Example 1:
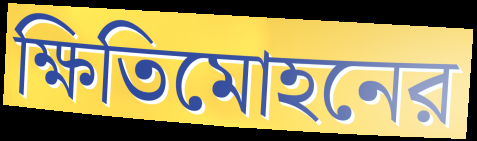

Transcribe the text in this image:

ক্ষিতিমোহনের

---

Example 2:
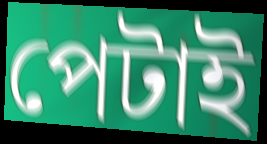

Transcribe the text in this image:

পেটাই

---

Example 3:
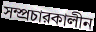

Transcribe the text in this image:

সম্প্রচারকালীন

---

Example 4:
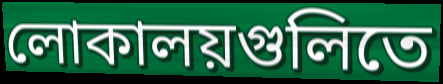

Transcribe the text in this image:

লোকালয়গুলিতে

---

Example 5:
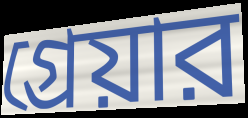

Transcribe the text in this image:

গ্রেয়ার